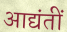
आद्यंतीं